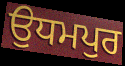
ਉਧਮਪੁਰ